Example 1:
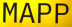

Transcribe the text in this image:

MAPP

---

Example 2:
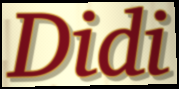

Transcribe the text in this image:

Didi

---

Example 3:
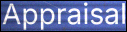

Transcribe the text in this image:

Appraisal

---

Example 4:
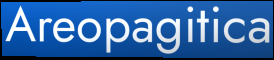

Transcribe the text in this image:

Areopagitica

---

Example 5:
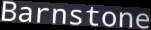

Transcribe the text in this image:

Barnstone